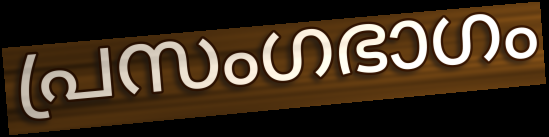
പ്രസംഗഭാഗം